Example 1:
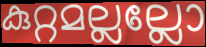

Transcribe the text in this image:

കുറ്റമല്ലല്ലോ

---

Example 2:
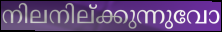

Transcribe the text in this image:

നിലനില്ക്കുന്നുവോ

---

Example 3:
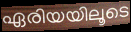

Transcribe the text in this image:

ഏരിയയിലൂടെ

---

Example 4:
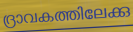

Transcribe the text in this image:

ദ്രാവകത്തിലേക്കു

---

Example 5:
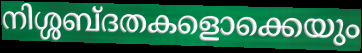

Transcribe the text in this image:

നിശ്ശബ്ദതകളൊക്കെയും